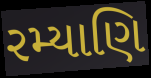
રમ્યાણિ